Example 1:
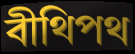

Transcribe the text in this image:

বীথিপথ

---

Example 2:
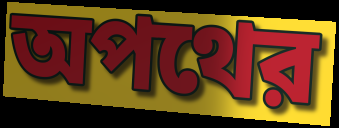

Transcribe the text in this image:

অপথের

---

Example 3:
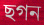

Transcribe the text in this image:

ছগন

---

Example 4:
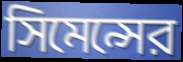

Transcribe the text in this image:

সিমেন্সের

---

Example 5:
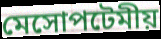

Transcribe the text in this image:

মেসোপটেমীয়